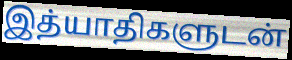
இத்யாதிகளுடன்